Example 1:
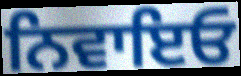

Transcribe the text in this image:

ਨਿਵਾਇਓ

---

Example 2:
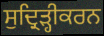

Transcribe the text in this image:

ਸੁਦ੍ਰਿੜ੍ਹੀਕਰਨ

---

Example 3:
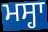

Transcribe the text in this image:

ਮਸ੍ਹਾ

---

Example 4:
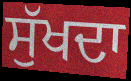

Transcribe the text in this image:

ਸੁੱਖਦਾ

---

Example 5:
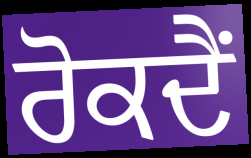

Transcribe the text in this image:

ਰੋਕਦੈਂ